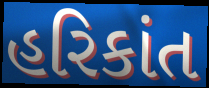
હરિકાંત